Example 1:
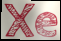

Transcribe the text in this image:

Xe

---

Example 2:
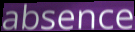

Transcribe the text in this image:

absence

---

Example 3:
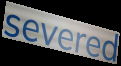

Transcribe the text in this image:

severed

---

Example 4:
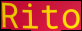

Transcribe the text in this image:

Rito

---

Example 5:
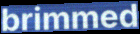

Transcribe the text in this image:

brimmed